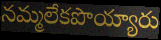
నమ్మలేకపొయ్యారు